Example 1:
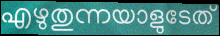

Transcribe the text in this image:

എഴുതുന്നയാളുടേത്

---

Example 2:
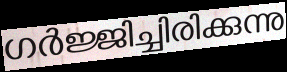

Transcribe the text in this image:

ഗർജ്ജിച്ചിരിക്കുന്നു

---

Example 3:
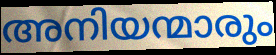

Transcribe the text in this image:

അനിയന്മാരും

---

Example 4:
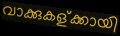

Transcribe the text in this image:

വാക്കുകള്ക്കായി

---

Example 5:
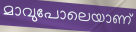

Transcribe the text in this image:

മാവുപോലെയാണ്